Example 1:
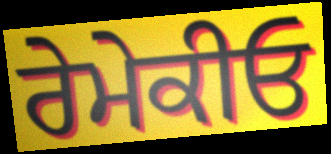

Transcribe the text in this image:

ਰੇਮੇਕੀਓ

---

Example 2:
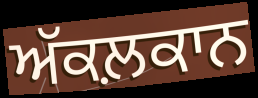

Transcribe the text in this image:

ਅੱਕਲ਼ਕਾਨ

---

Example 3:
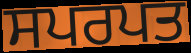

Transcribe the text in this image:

ਸਪਰਪਤ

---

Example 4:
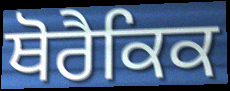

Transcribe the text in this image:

ਥੋਰੈਕਿਕ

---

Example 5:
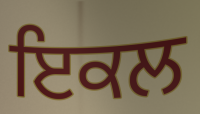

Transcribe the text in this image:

ਇਕਲ